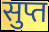
सुप्त